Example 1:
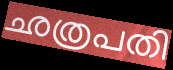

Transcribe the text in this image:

ഛത്രപതി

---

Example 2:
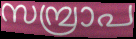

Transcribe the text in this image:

സമ്പ്രാപ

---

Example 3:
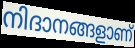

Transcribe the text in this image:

നിദാനങ്ങളാണ്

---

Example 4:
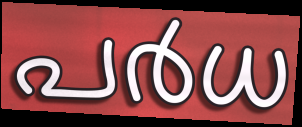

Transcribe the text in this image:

പർധ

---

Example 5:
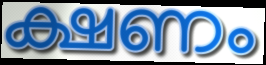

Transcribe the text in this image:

ക്ഷണം